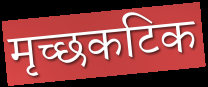
मृच्छकटिक